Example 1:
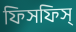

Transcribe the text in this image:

ফিসফিস্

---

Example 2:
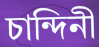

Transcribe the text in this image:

চান্দিনী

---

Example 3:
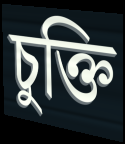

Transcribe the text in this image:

চুক্তি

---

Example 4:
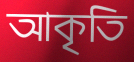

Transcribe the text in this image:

আকৃতি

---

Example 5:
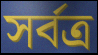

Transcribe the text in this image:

সর্বত্র